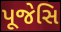
પૂજેસિ